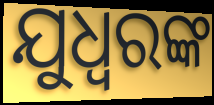
ଯୁଧ୍ଵରଙ୍କ